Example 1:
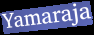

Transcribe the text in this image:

Yamaraja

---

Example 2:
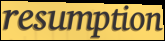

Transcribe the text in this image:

resumption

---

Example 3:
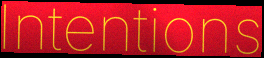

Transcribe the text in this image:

Intentions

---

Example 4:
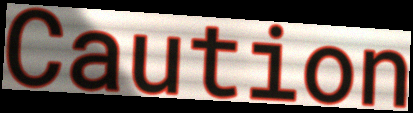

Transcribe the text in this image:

Caution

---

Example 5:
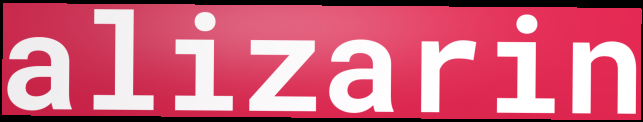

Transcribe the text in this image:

alizarin